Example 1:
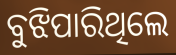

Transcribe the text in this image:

ବୁଝିପାରିଥିଲେ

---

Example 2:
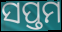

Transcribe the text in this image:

ସପ୍ତମ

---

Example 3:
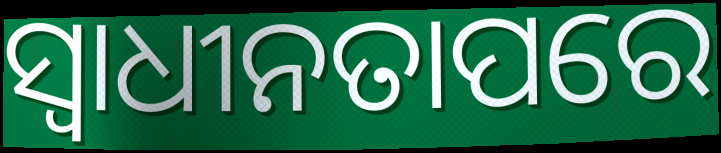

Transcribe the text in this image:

ସ୍ୱାଧୀନତାପରେ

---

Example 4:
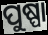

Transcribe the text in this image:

ପୁଷ୍ପା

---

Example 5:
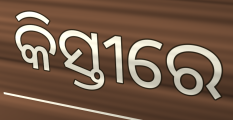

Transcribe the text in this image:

କିସ୍ତୀରେ